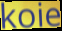
koie